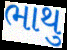
ભાથુ